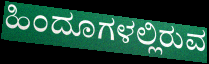
ಹಿಂದೂಗಳಲ್ಲಿರುವ